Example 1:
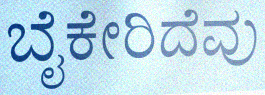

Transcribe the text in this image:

ಬೈಕೇರಿದೆವು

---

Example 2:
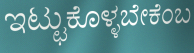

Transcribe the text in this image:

ಇಟ್ಟುಕೊಳ್ಳಬೇಕೆಂಬ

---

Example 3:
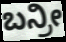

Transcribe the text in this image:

ಬನ್ರೀ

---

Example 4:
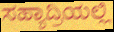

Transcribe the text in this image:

ಸಹ್ಯಾದ್ರಿಯಲ್ಲಿ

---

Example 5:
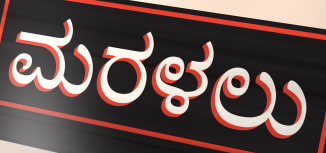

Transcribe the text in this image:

ಮರಳಲು